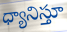
ధ్యానిస్తూ